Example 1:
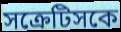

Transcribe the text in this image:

সক্রেটিসকে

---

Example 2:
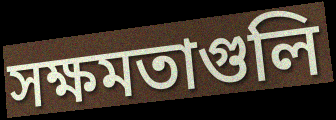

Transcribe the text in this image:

সক্ষমতাগুলি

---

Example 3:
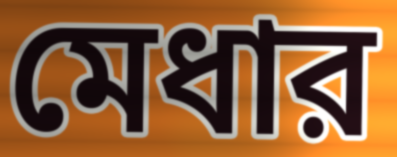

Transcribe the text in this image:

মেধার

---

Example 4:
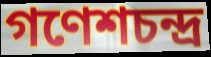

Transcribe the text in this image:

গণেশচন্দ্র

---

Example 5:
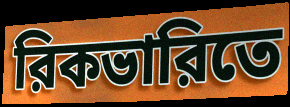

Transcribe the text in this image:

রিকভারিতে